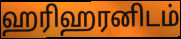
ஹரிஹரனிடம்